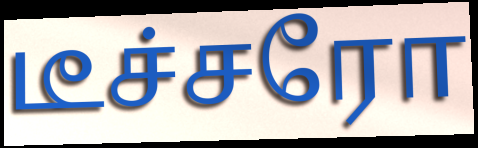
டீச்சரோ